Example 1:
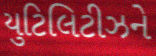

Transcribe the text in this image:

યુટિલિટીઝને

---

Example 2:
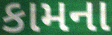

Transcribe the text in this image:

કામના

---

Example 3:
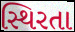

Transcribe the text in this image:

સ્થિરતા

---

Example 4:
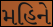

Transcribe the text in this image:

મહિને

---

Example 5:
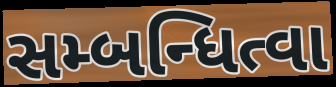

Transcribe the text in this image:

સમ્બન્ધિત્વા